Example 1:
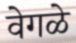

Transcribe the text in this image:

वेगळे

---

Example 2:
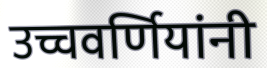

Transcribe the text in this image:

उच्चवर्णियांनी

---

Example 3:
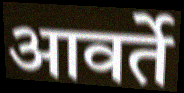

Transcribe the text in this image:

आवर्ते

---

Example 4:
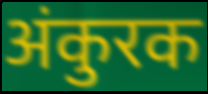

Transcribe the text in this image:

अंकुरक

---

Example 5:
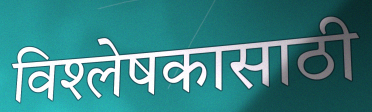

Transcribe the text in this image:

विश्लेषकासाठी